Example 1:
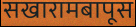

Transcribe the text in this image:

सखारामबापूस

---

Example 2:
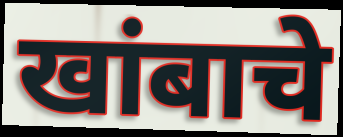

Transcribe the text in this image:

खांबाचे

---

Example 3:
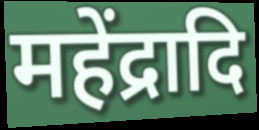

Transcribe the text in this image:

महेंद्रादि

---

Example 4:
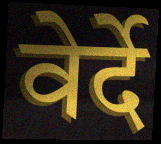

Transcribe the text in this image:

वेर्दे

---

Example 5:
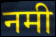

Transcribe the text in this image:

नमी